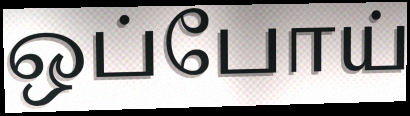
ஒப்போய்